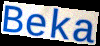
Beka